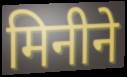
मिनीने